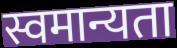
स्वमान्यता